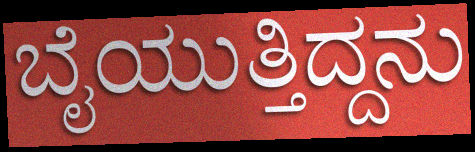
ಬೈಯುತ್ತಿದ್ದನು